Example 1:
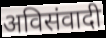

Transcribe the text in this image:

अविसंवादी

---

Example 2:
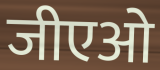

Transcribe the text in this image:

जीएओ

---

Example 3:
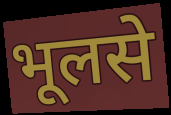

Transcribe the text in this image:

भूलसे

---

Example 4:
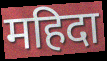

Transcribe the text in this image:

महिदा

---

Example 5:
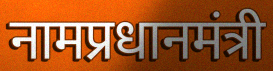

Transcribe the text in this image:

नामप्रधानमंत्री